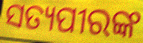
ସତ୍ୟପୀରଙ୍କ